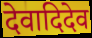
देवादिदेव